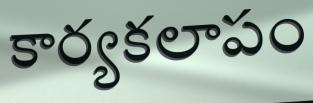
కార్యకలాపం